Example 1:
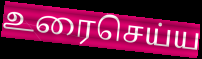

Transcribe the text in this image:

உரைசெய்ய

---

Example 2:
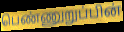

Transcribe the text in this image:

பெண்ணுறுப்பின்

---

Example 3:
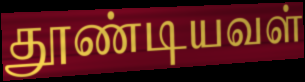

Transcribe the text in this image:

தூண்டியவள்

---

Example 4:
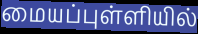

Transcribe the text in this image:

மையப்புள்ளியில்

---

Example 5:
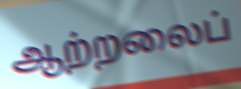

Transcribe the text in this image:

ஆற்றலைப்